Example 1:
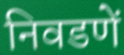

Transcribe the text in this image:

निवडणें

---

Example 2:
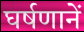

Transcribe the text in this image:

घर्षणानें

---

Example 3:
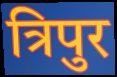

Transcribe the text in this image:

त्रिपुर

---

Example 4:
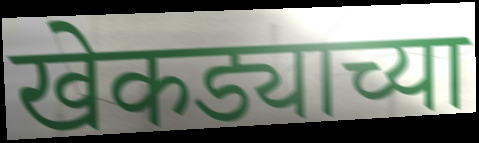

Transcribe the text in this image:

खेकड्याच्या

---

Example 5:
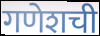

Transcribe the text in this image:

गणेशची